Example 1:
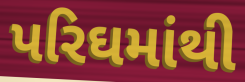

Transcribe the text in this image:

પરિઘમાંથી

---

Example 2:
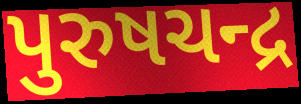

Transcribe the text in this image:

પુરુષચન્દ્ર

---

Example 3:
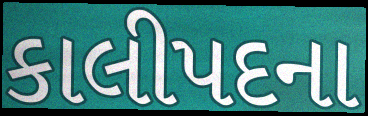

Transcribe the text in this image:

કાલીપદના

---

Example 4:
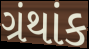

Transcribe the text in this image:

ગ્રંથાંક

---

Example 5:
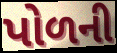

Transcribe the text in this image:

પોળની